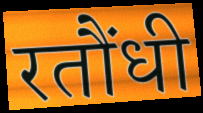
रतौंधी